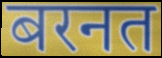
बरनत